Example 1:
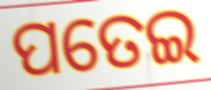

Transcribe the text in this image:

ପତେଇ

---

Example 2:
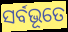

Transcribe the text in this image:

ସର୍ବଭୂତେ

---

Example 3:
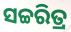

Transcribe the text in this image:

ସଚ୍ଚରିତ୍ର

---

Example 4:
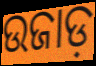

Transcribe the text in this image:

ଉଜାଡ଼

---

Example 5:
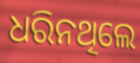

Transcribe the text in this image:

ଧରିନଥିଲେ